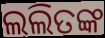
ଲଲିତଙ୍କ